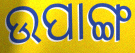
ଉପାଙ୍ଗ